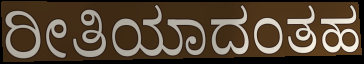
ರೀತಿಯಾದಂತಹ